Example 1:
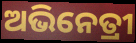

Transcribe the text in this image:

ଅଭିନେତ୍ରୀ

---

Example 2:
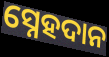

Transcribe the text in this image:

ସ୍ନେହଦାନ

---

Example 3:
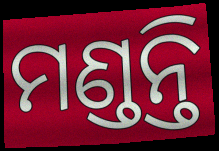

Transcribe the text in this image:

ମଣ୍ଡନ୍ତି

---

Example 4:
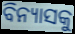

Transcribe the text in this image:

ବିନ୍ୟାସକୁ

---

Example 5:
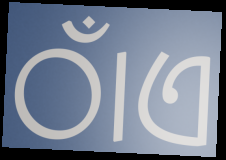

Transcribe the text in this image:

ଠାଁଏ